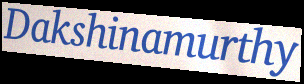
Dakshinamurthy